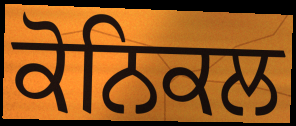
ਕੋਨਿਕਲ